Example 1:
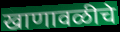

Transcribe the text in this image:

खाणावळीचे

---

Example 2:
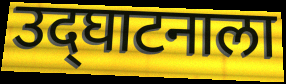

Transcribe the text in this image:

उद्घाटनाला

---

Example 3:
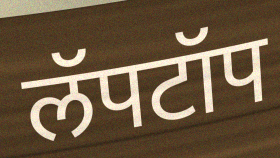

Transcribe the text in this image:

लॅपटॉप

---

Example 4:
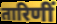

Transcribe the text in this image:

तारिणीं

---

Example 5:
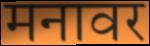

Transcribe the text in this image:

मनावर